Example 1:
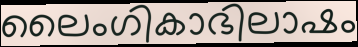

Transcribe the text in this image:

ലൈംഗികാഭിലാഷം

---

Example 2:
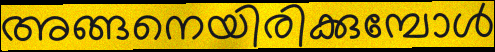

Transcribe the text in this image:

അങ്ങനെയിരിക്കുമ്പോൾ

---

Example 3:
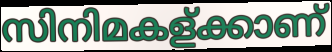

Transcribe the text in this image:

സിനിമകള്ക്കാണ്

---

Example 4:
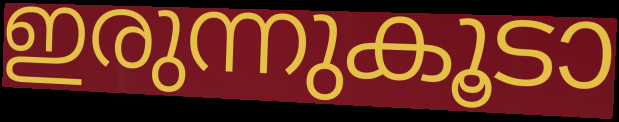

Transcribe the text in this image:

ഇരുന്നുകൂടാ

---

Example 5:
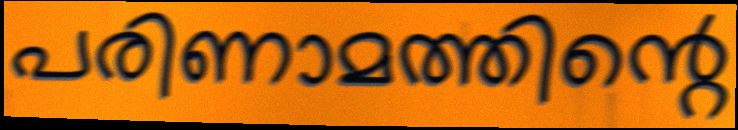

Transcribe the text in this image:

പരിണാമത്തിന്റെ